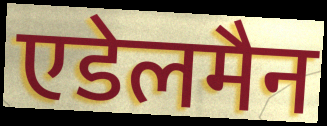
एडेलमैन